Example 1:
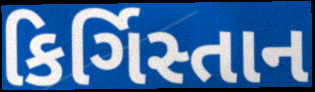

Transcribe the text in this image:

કિર્ગિસ્તાન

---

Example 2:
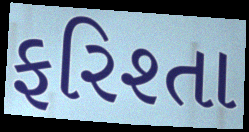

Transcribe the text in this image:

ફરિશ્તા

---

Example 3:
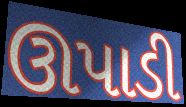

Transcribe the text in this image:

ઊપાડી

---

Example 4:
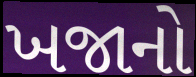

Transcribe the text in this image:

ખજાનો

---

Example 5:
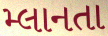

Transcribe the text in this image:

મ્લાનતા